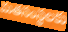
మతసంస్థలకు